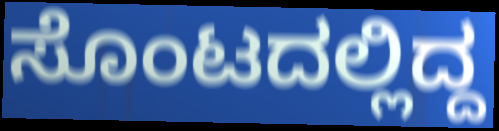
ಸೊಂಟದಲ್ಲಿದ್ದ